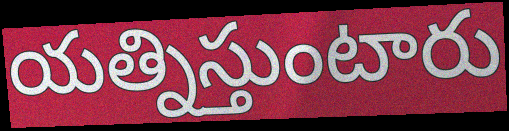
యత్నిస్తుంటారు